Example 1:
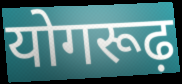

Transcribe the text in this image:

योगरूढ़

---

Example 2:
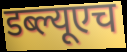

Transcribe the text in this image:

डब्ल्यूएच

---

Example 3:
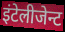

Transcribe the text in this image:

इंटेलीजेन्ट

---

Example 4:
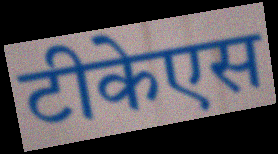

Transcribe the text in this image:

टीकेएस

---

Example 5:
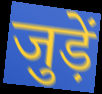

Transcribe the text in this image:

जुड़ें